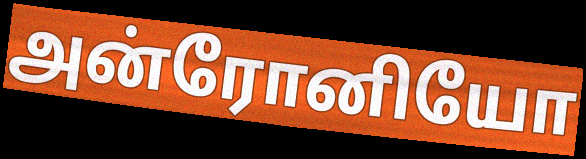
அன்ரோனியோ